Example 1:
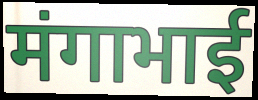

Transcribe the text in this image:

मंगाभाई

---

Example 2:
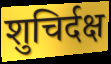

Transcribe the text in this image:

शुचिर्दक्ष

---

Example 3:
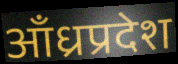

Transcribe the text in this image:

आँध्रप्रदेश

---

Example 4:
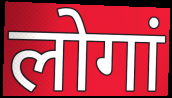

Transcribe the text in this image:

लोगां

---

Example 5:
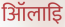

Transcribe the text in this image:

ऑिलाइि